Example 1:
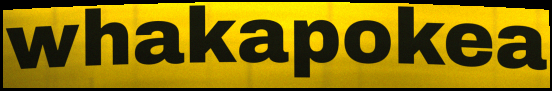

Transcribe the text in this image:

whakapokea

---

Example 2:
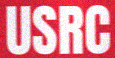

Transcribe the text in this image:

USRC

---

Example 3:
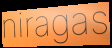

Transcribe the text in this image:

niragas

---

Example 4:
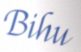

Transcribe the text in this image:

Bihu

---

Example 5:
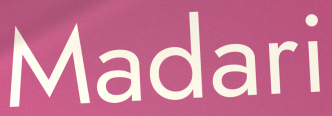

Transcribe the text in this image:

Madari